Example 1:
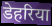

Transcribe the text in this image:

डेहरिया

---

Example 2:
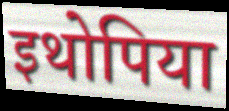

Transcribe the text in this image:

इथोपिया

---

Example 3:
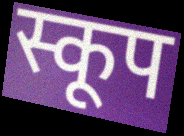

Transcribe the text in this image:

स्कूप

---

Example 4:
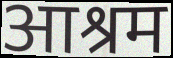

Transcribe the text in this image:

आश्रम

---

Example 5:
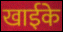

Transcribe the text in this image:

खाईके